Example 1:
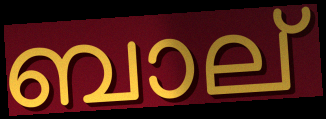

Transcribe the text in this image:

ബാല്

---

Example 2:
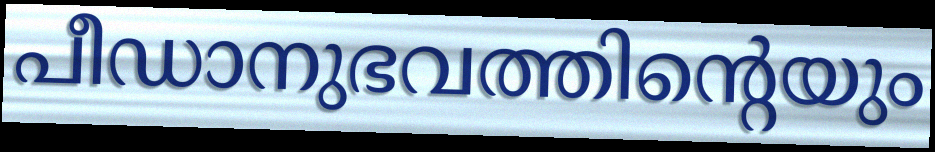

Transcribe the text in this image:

പീഡാനുഭവത്തിന്റെയും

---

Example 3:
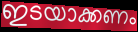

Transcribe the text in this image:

ഇടയാക്കണം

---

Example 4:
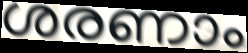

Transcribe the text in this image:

ശരണാം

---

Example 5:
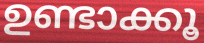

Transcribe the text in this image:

ഉണ്ടാക്കൂ